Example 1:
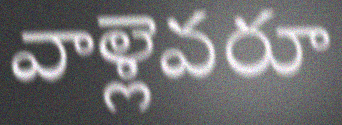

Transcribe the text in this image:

వాళ్లెవరూ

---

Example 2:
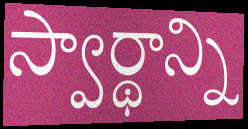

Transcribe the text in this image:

స్వార్థాన్ని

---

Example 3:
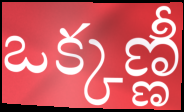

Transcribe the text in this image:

ఒక్కణ్ణీ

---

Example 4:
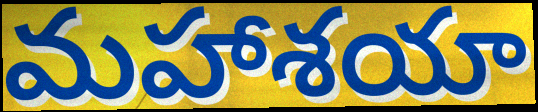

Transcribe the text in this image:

మహాశయా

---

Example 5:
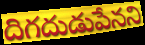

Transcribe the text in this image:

దిగదుడుపేనని